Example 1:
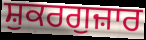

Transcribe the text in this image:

ਸ਼ੁਕਰਗੁਜ਼ਾਰ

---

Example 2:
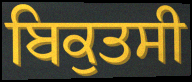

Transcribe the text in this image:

ਬਿਕੁਤਸੀ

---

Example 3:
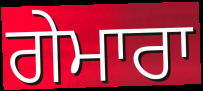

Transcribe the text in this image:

ਗੇਮਾਰਾ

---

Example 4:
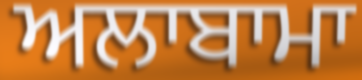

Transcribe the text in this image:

ਅਲਾਬਾਮਾ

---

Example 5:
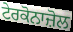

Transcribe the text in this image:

ਟੇਰਕੋਨਾਜ਼ੋਲ